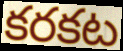
కరకట